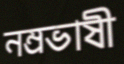
নম্রভাষী